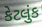
કેટલુંક